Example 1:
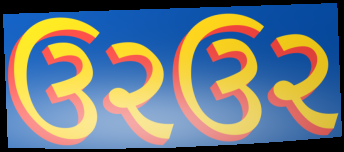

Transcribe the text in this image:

ઉરઉર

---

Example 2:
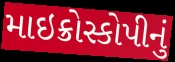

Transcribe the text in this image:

માઇક્રોસ્કોપીનું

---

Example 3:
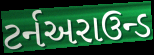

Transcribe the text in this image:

ટર્નઅરાઉન્ડ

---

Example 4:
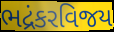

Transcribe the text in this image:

ભદ્રંકરવિજય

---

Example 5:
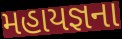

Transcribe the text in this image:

મહાયજ્ઞના